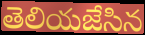
తెలియజేసిన